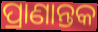
ପ୍ରାଣାନ୍ତକ